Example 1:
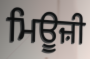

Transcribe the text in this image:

ਮਿਊਜ਼ੀ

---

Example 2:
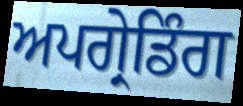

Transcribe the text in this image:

ਅਪਗ੍ਰੇਡਿੰਗ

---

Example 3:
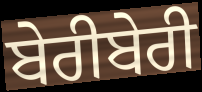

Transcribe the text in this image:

ਬੇਰੀਬੇਰੀ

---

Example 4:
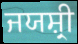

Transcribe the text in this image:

ਜਯਸ਼੍ਰੀ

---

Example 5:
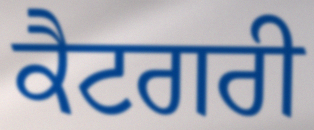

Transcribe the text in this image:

ਕੈਟਗਰੀ